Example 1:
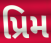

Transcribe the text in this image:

પ્રિમ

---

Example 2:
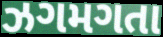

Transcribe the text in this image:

ઝગમગતા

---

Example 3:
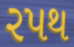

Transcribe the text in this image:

રપથ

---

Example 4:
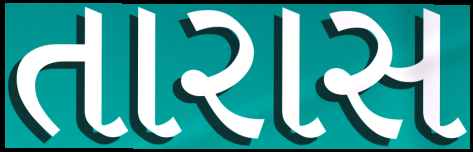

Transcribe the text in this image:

તારાસ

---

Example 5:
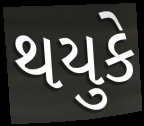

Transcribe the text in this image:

થયુકે